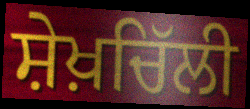
ਸ਼ੇਖ਼ਚਿੱਲੀ